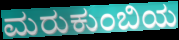
ಮರುಕುಂಬಿಯ